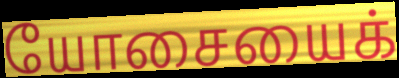
யோசையைக்